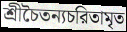
শ্রীচৈতন্যচরিতামৃত